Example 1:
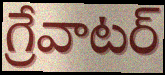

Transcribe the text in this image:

గ్రేవాటర్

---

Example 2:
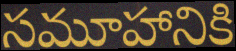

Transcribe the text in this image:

సమూహానికి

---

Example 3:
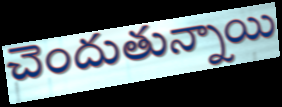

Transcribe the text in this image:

చెందుతున్నాయి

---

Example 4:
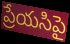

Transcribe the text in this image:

ప్రేయసిపై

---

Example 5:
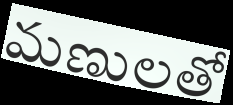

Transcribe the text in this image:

మణులతో